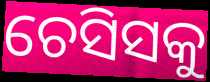
ଚେସିସକୁ